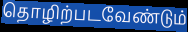
தொழிற்படவேண்டும்